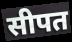
सीपत